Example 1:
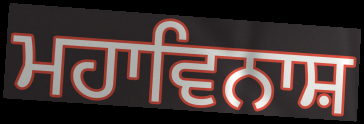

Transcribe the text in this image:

ਮਹਾਵਿਨਾਸ਼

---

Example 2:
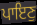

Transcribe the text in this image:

ਪਾਇਣੁ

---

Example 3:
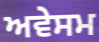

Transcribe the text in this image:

ਅਵੇਸਮ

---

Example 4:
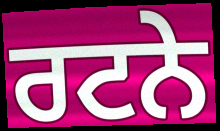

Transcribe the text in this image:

ਰਟਨੇ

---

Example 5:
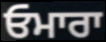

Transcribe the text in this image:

ਓਮਾਰਾ